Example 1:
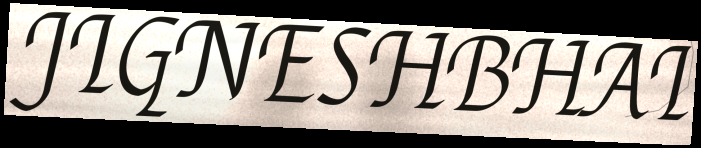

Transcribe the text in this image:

JIGNESHBHAI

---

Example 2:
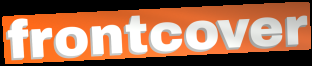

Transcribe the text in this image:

frontcover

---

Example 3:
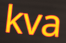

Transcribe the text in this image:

kva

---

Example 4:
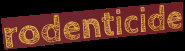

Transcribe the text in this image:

rodenticide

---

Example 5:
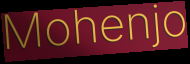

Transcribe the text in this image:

Mohenjo